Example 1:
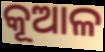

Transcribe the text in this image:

କୂଆଳ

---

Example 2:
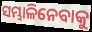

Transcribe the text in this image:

ସମ୍ଭାଳିନେବାକୁ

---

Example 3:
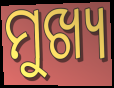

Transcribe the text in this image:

ମୁଖ୍ୟ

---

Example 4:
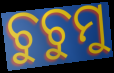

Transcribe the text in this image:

ଚୁଚୁମୁ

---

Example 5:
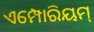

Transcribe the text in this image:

ଏମ୍ପୋରିୟମ୍